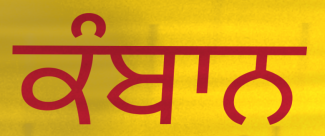
ਕੰਬਾਨ